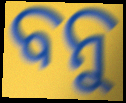
ବନୁ